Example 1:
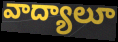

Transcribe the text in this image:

వాద్యాలూ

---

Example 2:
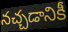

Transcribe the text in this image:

నచ్చడానికీ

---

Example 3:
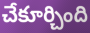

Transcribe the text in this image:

చేకూర్చింది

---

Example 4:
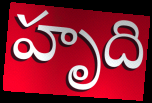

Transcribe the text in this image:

హృది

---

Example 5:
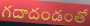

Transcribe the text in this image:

గదాదండంతో